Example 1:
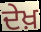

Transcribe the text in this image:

ਦੇਖ਼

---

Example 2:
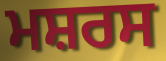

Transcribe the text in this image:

ਮਸ਼ਰਸ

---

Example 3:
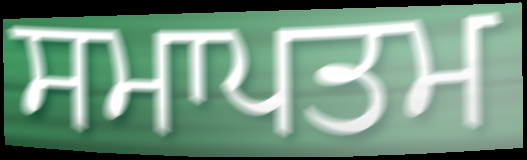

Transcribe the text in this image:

ਸਮਾਪਤਮ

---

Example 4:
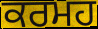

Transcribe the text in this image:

ਕਰਮਹ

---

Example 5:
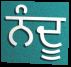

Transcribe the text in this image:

ਨੰਦੂ